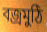
বজ্রমুঠি